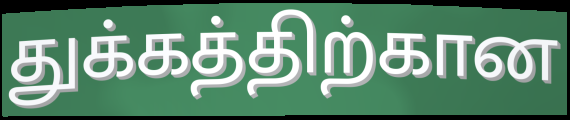
துக்கத்திற்கான